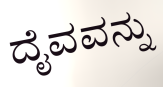
ದೈವವನ್ನು